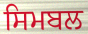
ਸਿਮਬਲ